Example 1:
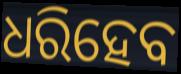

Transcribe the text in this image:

ଧରିହେବ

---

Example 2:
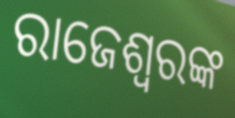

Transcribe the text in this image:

ରାଜେଶ୍ୱରଙ୍କ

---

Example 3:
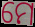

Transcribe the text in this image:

ମେ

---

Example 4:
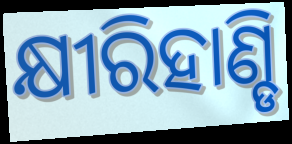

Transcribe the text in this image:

କ୍ଷୀରିହାଣ୍ଡି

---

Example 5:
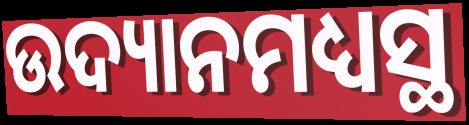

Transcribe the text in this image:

ଉଦ୍ୟାନମଧ୍ୟସ୍ଥ